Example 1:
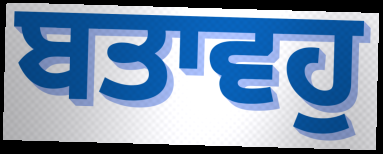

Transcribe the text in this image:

ਬਤਾਵਹੁ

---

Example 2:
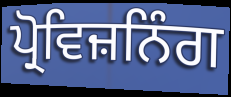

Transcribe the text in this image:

ਪ੍ਰੋਵਿਜ਼ਨਿੰਗ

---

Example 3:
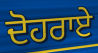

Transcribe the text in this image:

ਦੋਹਰਾਏ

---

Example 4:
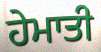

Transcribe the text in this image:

ਹੇਮਾਤੀ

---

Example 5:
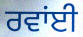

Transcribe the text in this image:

ਰਵਾਂਈ